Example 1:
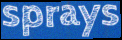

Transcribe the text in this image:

sprays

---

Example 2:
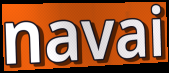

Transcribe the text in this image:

navai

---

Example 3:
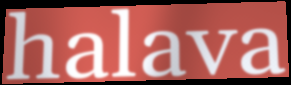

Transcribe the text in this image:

halava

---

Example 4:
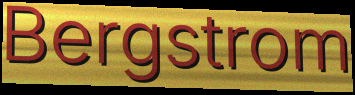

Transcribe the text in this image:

Bergstrom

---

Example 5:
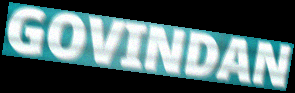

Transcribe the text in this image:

GOVINDAN